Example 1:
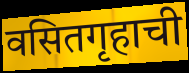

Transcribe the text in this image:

वसितगृहाची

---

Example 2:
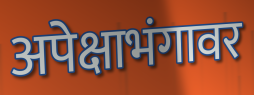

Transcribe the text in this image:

अपेक्षाभंगावर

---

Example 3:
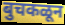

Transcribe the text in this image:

बुचकळून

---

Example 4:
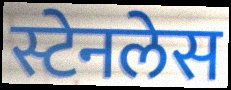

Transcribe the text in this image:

स्टेनलेस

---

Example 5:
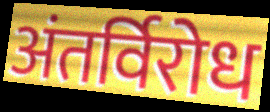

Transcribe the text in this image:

अंतर्विरोध